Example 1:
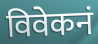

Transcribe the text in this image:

विवेकनं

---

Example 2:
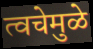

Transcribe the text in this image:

त्वचेमुळे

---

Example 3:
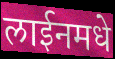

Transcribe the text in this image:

लाईनमधे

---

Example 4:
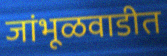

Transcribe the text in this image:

जांभूळवाडीत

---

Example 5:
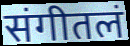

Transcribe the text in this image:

संगीतलं